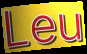
Leu